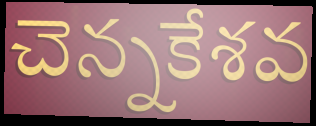
చెన్నకేశవ